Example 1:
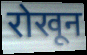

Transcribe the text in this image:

रोखून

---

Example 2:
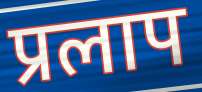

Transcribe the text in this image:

प्रलाप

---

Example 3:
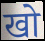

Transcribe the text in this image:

खो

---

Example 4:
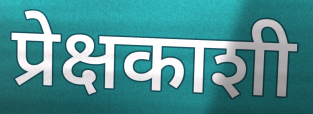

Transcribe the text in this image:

प्रेक्षकाशी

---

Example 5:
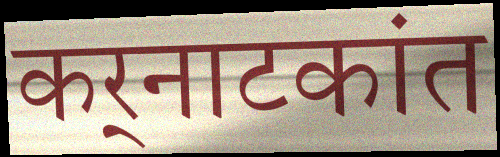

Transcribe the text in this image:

कर्नाटकांत